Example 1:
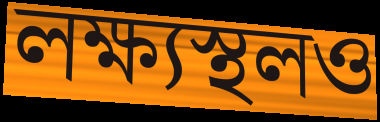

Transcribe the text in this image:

লক্ষ্যস্থলও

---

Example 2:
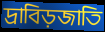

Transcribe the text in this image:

দ্রাবিড়জাতি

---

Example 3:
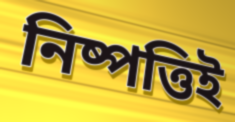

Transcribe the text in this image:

নিষ্পত্তিই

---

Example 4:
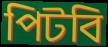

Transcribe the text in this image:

পিটবি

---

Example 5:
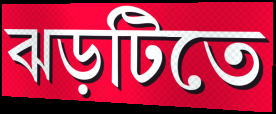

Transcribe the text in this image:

ঝড়টিতে